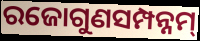
ରଜୋଗୁଣସମ୍ପନ୍ନମ୍